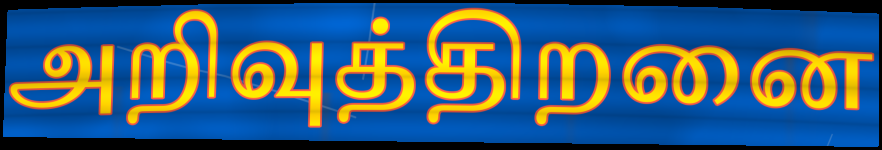
அறிவுத்திறனை